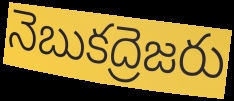
నెబుకద్రెజరు